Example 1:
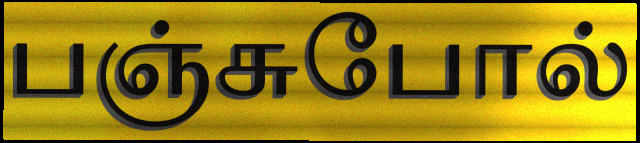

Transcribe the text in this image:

பஞ்சுபோல்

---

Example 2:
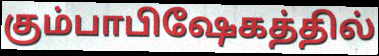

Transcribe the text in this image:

கும்பாபிஷேகத்தில்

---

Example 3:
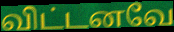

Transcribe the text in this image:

விட்டனவே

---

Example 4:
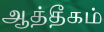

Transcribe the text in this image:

ஆத்தீகம்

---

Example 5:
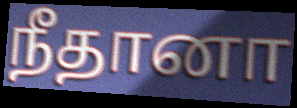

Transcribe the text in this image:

நீதானா